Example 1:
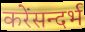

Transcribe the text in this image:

करेंसन्दर्भ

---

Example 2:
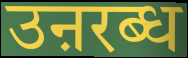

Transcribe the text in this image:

उऩरब्ध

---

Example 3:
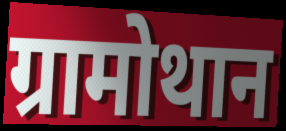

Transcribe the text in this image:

ग्रामोथान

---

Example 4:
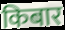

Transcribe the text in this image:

किबार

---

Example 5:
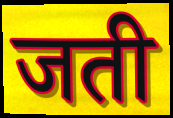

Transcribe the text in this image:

जती